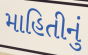
માહિતીનું